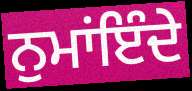
ਨੁਮਾਂਇੰਦੇ